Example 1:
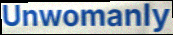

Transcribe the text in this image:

Unwomanly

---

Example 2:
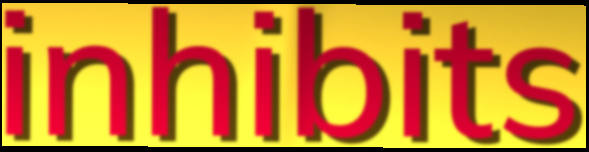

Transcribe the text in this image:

inhibits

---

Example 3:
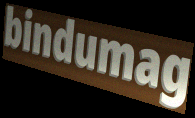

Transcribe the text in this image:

bindumag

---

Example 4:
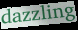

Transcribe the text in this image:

dazzling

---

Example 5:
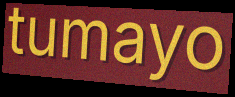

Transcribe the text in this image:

tumayo